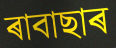
ৰাবাছাৰ